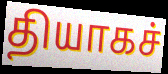
தியாகச்